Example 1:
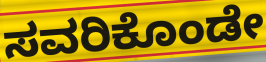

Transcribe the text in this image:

ಸವರಿಕೊಂಡೇ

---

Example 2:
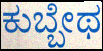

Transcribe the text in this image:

ಕುಬ್ಬೇಥ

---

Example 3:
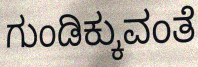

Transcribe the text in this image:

ಗುಂಡಿಕ್ಕುವಂತೆ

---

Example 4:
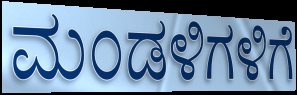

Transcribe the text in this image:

ಮಂಡಳಿಗಳಿಗೆ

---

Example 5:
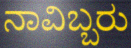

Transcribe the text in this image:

ನಾವಿಬ್ಬರು